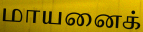
மாயனைக்